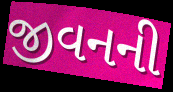
જીવનની